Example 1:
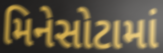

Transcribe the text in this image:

મિનેસોટામાં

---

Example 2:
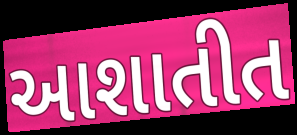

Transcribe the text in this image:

આશાતીત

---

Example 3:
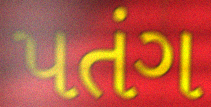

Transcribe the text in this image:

પતંગ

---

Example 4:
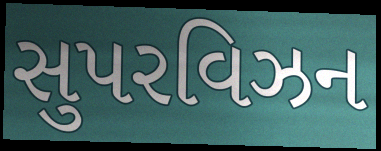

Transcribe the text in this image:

સુપરવિઝન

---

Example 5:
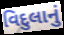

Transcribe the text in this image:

વિદુલાનું